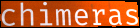
chimeras